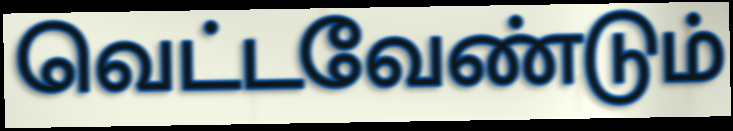
வெட்டவேண்டும்